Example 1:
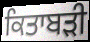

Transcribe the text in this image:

ਕਿਤਾਬੜੀ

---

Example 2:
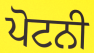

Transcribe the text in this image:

ਪੋਟਨੀ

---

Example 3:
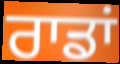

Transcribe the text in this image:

ਰਾਡਾਂ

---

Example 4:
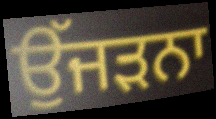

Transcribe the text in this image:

ਉੱਜੜਨਾ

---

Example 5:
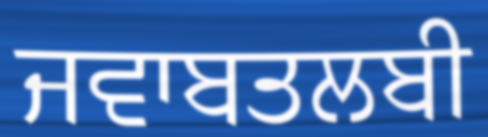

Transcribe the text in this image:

ਜਵਾਬਤਲਬੀ